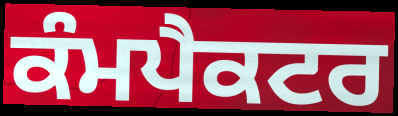
ਕੰਮਪੈਕਟਰ